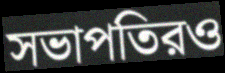
সভাপতিরও